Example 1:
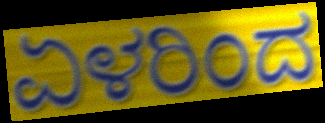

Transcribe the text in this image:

ಏಳರಿಂದ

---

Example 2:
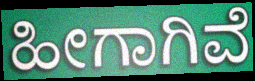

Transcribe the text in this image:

ಹೀಗಾಗಿವೆ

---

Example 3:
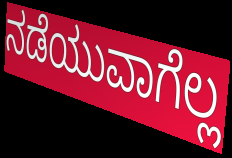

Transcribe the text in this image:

ನಡೆಯುವಾಗೆಲ್ಲ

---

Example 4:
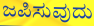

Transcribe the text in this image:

ಜಪಿಸುವುದು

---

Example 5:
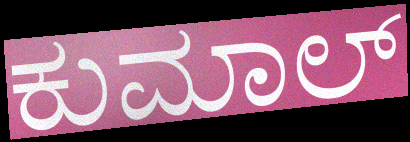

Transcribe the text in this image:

ಕುಮಾಲ್